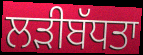
ਲੜੀਬੱਧਤਾ